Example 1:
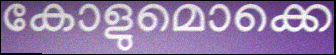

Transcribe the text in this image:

കോളുമൊക്കെ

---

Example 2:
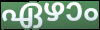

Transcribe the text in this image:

ഏഴാം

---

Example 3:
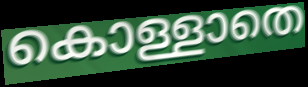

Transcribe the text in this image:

കൊള്ളാതെ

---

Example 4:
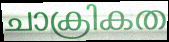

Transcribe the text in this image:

ചാക്രികത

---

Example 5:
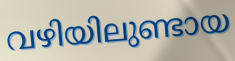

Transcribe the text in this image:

വഴിയിലുണ്ടായ